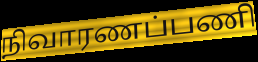
நிவாரணப்பணி